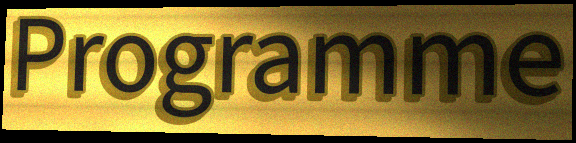
Programme